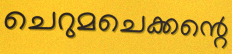
ചെറുമചെക്കന്റെ